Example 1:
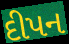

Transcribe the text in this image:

દીપન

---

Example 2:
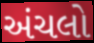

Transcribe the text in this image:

અંચલો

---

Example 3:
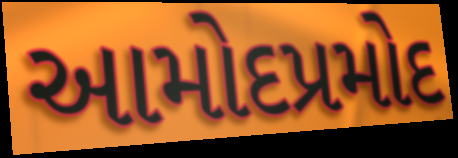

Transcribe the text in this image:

આમોદપ્રમોદ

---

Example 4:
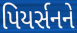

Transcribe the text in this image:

પિયર્સનને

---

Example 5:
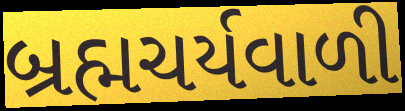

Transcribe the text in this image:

બ્રહ્મચર્યવાળી